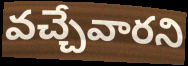
వచ్చేవారని